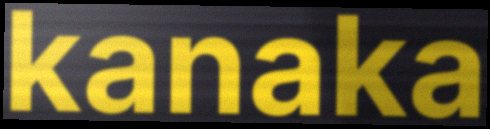
kanaka